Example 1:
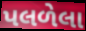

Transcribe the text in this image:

પલળેલા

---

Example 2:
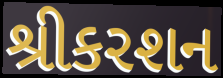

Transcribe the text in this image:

શ્રીકરશન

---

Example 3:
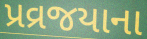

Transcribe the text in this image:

પ્રવ્રજયાના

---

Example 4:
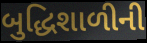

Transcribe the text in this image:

બુદ્ધિશાળીની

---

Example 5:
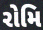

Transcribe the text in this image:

રોમિ